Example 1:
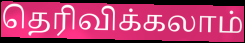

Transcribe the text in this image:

தெரிவிக்கலாம்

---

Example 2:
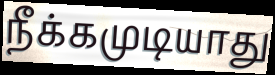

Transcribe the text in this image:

நீக்கமுடியாது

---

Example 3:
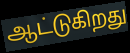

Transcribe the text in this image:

ஆட்டுகிறது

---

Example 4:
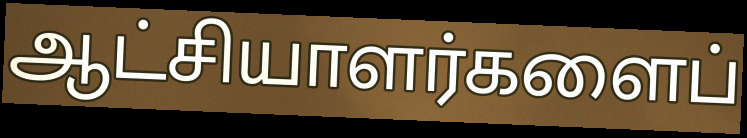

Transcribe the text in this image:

ஆட்சியாளர்களைப்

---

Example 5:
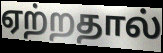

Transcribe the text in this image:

ஏற்றதால்